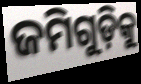
ଜମିଗୁଡ଼ିକୁ